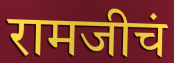
रामजीचं